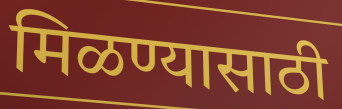
मिळण्‍यासाठी